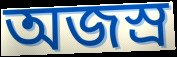
অজস্র